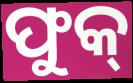
ଫୁକ୍